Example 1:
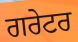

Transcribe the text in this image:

ਗਰੇਟਰ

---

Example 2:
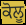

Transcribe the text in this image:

ਕੋਲੂ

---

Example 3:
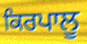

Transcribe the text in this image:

ਕਿਰਪਾਲੂ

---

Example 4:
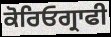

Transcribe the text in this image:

ਕੋਰਿਓਗ੍ਰਾਫੀ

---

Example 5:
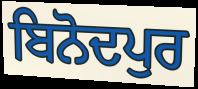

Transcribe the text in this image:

ਬਿਨੋਦਪੁਰ